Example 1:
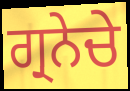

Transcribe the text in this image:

ਗ੍ਰਨੇਚੇ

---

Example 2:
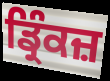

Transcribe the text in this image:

ਡ੍ਰਿੰਕਜ਼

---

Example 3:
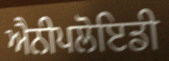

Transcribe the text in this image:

ਐਨੀਪਲੋਇਡੀ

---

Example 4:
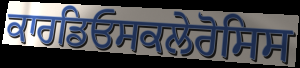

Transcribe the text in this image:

ਕਾਰਡਿਓਸਕਲੇਰੋਸਿਸ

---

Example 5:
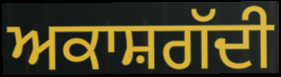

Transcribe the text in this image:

ਅਕਾਸ਼ਗੱਦੀ